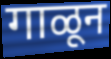
गाळून